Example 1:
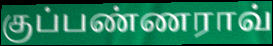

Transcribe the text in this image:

குப்பண்ணராவ்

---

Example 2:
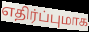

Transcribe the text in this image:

எதிர்ப்புமாக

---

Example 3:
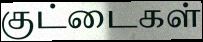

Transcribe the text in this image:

குட்டைகள்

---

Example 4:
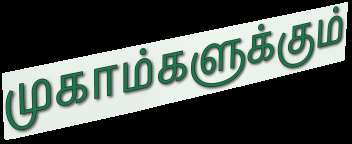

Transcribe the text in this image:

முகாம்களுக்கும்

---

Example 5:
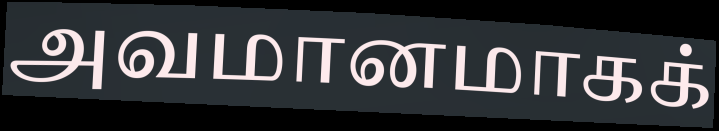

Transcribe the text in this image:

அவமானமாகக்